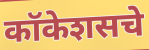
कॉकेशसचे